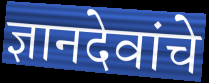
ज्ञानदेवांचे